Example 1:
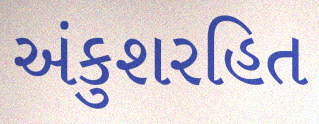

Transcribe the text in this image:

અંકુશરહિત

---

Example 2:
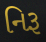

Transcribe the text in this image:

નિરૂ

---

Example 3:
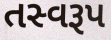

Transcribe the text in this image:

તસ્વરૂપ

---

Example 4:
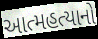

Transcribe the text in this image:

આત્મહત્યાનો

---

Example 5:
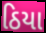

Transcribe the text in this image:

ઠિયા